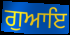
ਗੁਆਇ